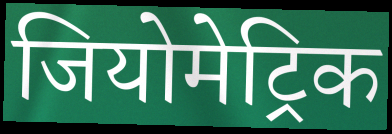
जियोमेट्रिक